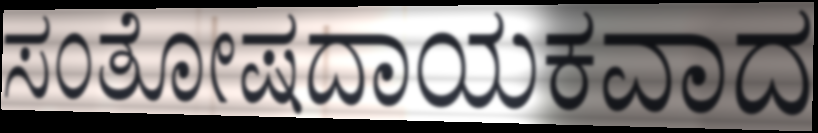
ಸಂತೋಷದಾಯಕವಾದ